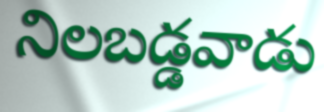
నిలబడ్డవాడు